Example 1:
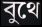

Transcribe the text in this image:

বুথে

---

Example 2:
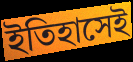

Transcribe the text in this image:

ইতিহাসেই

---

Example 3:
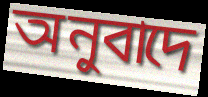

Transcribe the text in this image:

অনুবাদে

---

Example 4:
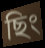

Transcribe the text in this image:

ছিং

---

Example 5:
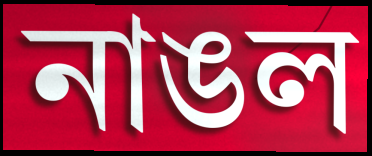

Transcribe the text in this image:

নাঙল